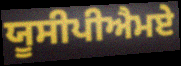
ਯੂਸੀਪੀਐਮਏ